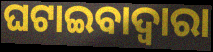
ଘଟାଇବାଦ୍ୱାରା